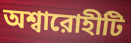
অশ্বারোহীটি